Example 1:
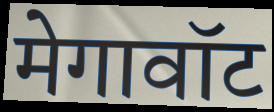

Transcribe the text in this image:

मेगावॉट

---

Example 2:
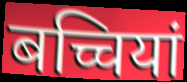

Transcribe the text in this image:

बच्चियां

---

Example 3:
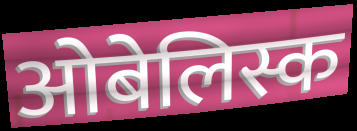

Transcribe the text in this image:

ओबेलिस्क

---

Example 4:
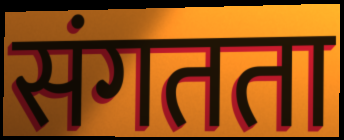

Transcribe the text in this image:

संगतता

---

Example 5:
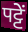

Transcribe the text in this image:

पट्टें